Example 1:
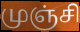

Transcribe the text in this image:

முஞ்சி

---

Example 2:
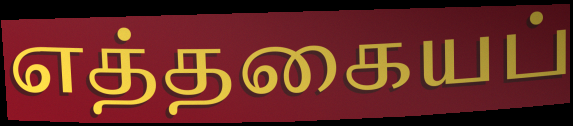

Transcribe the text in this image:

எத்தகையப்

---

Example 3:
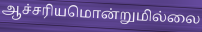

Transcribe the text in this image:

ஆச்சரியமொன்றுமில்லை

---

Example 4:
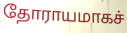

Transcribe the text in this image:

தோராயமாகச்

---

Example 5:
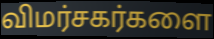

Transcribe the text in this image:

விமர்சகர்களை